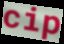
cip